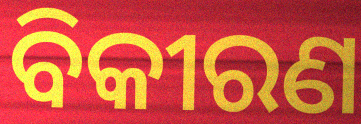
ବିକୀରଣ